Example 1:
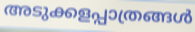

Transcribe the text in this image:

അടുക്കളപ്പാത്രങ്ങൾ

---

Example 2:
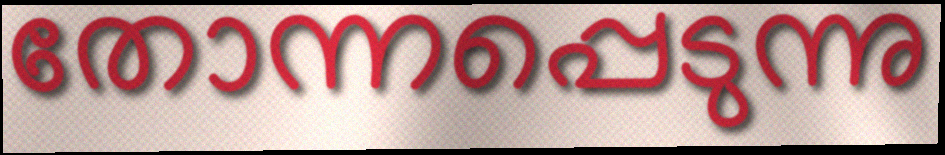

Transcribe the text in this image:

തോന്നപ്പെടുന്നു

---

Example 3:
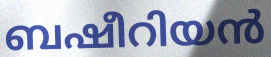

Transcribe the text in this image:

ബഷീറിയൻ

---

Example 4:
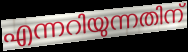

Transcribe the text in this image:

എന്നറിയുന്നതിന്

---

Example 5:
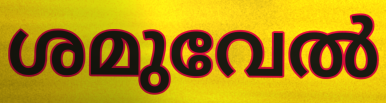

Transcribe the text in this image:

ശമുവേൽ